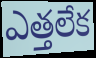
ఎత్తలేక